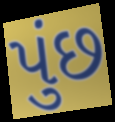
પુંછ